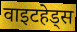
वाइटहेड्स